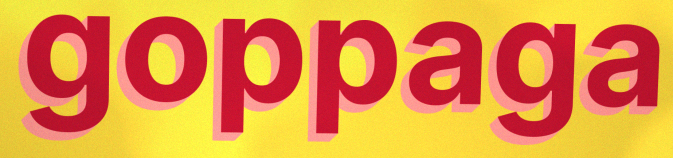
goppaga